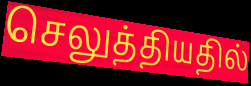
செலுத்தியதில்